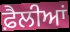
ਫ਼ੈਲੀਆਂ